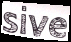
sive